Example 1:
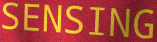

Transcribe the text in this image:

SENSING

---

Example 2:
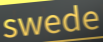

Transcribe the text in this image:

swede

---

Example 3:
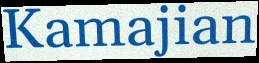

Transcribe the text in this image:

Kamajian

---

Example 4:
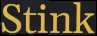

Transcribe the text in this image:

Stink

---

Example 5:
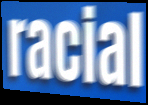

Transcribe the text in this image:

racial